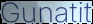
Gunatit